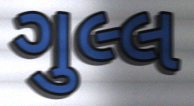
ગુલ્લ